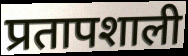
प्रतापशाली